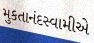
મુકતાનંદસ્વામીએ